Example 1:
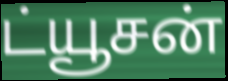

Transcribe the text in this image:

ட்யூசன்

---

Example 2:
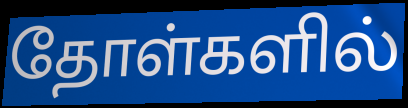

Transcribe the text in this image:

தோள்களில்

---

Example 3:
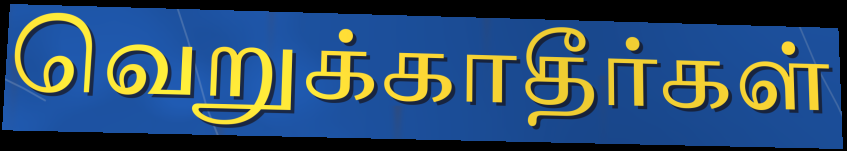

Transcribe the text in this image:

வெறுக்காதீர்கள்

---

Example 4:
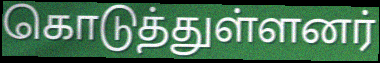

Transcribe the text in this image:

கொடுத்துள்ளனர்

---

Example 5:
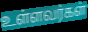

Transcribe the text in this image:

உள்ளவர்கள்